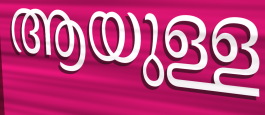
ആയുള്ള